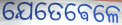
ଯେତେଵେଳେ